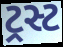
ટ્રસ્ટ